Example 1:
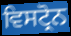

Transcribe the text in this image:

ਵਿਸਟ੍ਰੋਨ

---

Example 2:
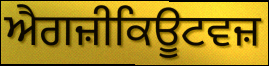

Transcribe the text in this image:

ਐਗਜ਼ੀਕਿਊਟਵਜ਼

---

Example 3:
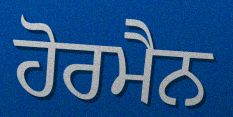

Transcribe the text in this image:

ਹੋਰਮੈਨ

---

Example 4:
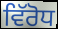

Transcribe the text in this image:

ਵਿੱਰੋਧ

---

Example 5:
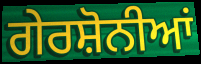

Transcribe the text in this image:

ਗੇਰਸ਼ੋਨੀਆਂ